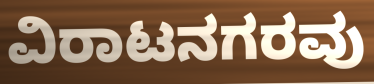
ವಿರಾಟನಗರವು